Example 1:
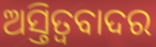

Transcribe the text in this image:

ଅସ୍ତିତ୍ବବାଦର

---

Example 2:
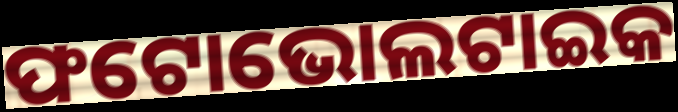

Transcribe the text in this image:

ଫଟୋଭୋଲଟାଇକ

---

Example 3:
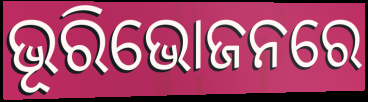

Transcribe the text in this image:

ଭୂରିଭୋଜନରେ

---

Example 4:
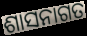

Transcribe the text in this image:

ଶାସନାଗତ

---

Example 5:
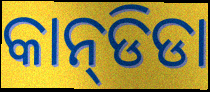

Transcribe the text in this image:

କାନ୍‌ଡିଡା